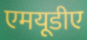
एमयूडीए